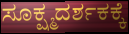
ಸೂಕ್ಷ್ಮದರ್ಶಕಕ್ಕೆ